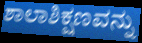
ಶಾಲಾಶಿಕ್ಷಣವನ್ನು